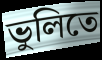
ভুলিতে